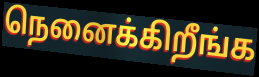
நெனைக்கிறீங்க